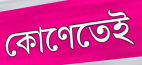
কোণেতেই